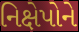
નિક્ષેપોને